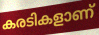
കരടികളാണ്